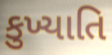
કુખ્યાતિ